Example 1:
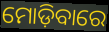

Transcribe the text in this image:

ମୋଡ଼ିବାରେ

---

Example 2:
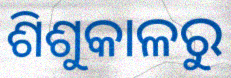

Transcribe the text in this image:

ଶିଶୁକାଳରୁ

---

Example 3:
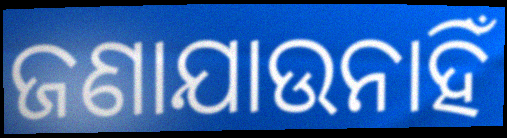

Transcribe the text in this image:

ଜଣାଯାଉନାହିଁ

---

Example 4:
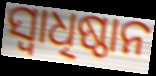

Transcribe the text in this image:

ସ୍ୱାଧିଷ୍ଠାନ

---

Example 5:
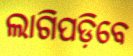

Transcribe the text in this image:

ଲାଗିପଡ଼ିବେ